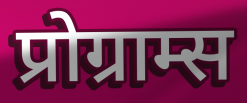
प्रोग्राम्स